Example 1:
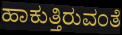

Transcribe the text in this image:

ಹಾಕುತ್ತಿರುವಂತೆ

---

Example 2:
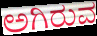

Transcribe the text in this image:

ಅಗಿರುವ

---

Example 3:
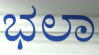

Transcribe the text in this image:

ಭಲಾ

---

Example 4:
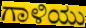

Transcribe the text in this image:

ಗಾಳಿಯು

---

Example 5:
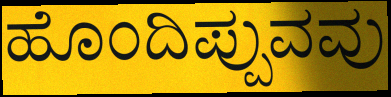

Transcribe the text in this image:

ಹೊಂದಿಪ್ಪುವವು